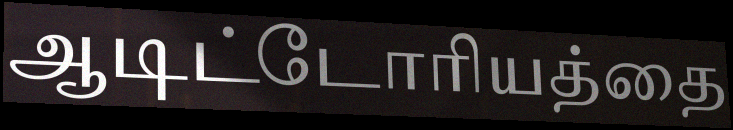
ஆடிட்டோரியத்தை